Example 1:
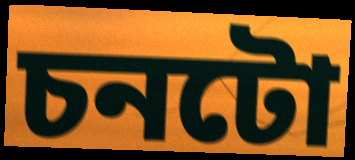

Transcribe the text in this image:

চনটো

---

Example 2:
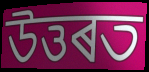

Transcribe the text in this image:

উত্তৰত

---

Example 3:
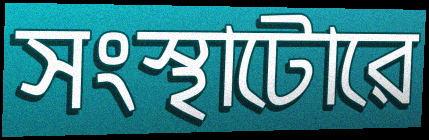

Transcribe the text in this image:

সংস্থাটোৱে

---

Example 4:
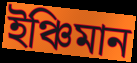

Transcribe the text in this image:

ইঞ্চিমান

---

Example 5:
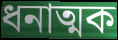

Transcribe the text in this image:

ধনাত্মক